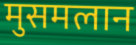
मुसमलान